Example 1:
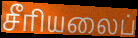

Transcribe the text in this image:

சீரியலைப்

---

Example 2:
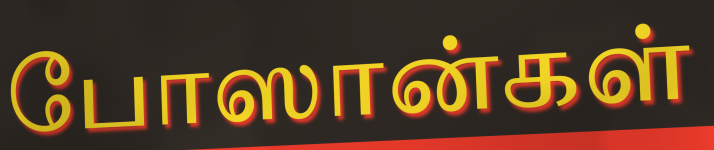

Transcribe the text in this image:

போஸான்கள்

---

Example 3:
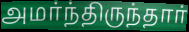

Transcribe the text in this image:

அமர்ந்திருந்தார்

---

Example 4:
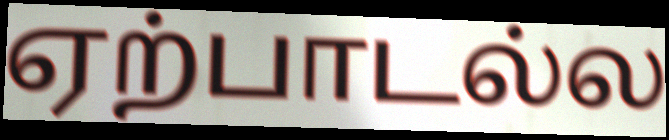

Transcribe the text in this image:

ஏற்பாடல்ல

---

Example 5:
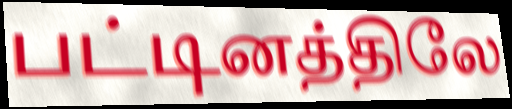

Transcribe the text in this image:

பட்டினத்திலே